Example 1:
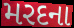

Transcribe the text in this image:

મરદના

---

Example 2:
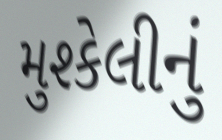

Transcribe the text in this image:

મુશ્કેલીનું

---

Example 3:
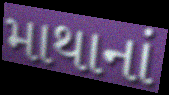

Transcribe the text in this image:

માથાનાં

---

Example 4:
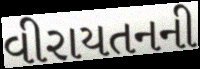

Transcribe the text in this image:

વીરાયતનની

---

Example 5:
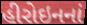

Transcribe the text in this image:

હીરોઇનનાં